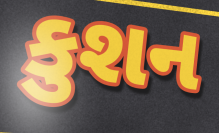
કુશન